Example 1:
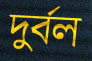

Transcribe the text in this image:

দুৰ্বল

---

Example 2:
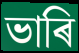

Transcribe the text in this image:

ভাৰি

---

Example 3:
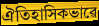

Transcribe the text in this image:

ঐতিহাসিকভাৱে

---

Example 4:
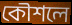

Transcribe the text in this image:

কৌশলে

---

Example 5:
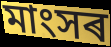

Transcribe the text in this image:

মাংসৰ